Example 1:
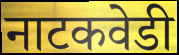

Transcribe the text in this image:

नाटकवेडी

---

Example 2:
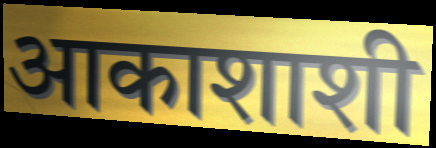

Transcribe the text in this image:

आकाशाशी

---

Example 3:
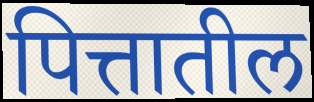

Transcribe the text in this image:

पित्तातील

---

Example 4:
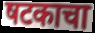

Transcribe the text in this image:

षटकाचा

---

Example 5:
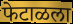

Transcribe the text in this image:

फेटाळला